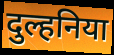
दुल्हनिया